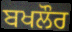
ਬਖਲੌਰ